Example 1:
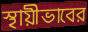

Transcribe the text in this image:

স্থায়ীভাবের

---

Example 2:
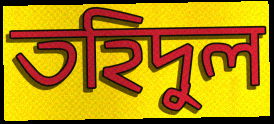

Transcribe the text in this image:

তহিদুল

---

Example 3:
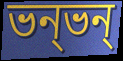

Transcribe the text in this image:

ভন্ভন্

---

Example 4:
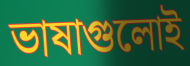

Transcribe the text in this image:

ভাষাগুলোই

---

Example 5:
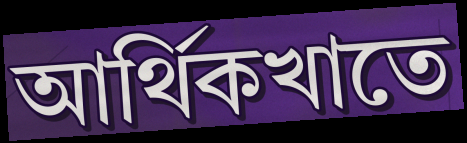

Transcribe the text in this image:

আর্থিকখাতে